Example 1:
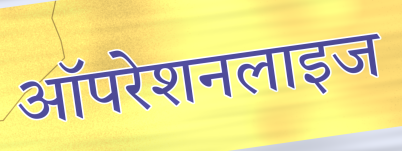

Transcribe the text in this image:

ऑपरेशनलाइज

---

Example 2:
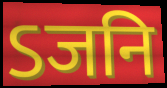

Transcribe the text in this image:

ऽजनि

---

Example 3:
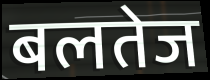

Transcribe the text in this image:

बलतेज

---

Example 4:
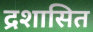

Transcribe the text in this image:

द्रशासित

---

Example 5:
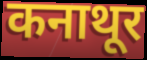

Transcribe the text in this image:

कनाथूर